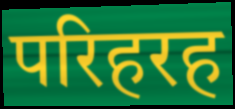
परिहरह